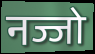
नज्जो